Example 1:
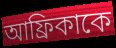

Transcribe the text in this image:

আফ্রিকাকে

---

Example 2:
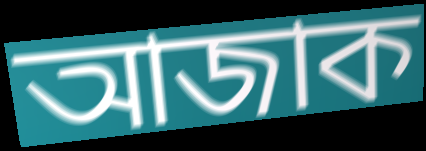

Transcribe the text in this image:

আজাক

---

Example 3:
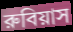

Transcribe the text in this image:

রুবিয়াস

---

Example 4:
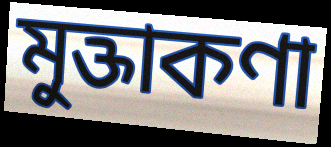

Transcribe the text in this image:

মুক্তাকণা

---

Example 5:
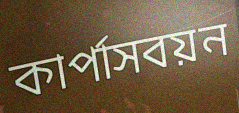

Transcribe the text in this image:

কার্পাসবয়ন